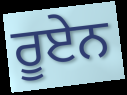
ਰੂਏਨ